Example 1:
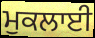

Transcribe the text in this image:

ਮੁਕਲਾਈ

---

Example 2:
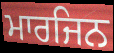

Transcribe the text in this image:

ਮਾਰਜਿਨ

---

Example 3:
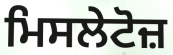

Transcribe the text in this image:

ਮਿਸਲੇਟੋਜ਼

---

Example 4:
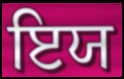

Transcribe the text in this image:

ਇਯ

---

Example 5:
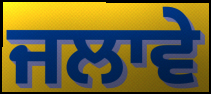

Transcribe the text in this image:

ਜਲਾਵੇ